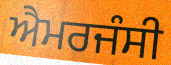
ਐਮਰਜੰਸੀ